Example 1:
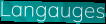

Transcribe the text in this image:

Langauges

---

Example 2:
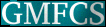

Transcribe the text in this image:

GMFCS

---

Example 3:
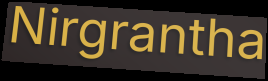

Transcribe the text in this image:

Nirgrantha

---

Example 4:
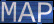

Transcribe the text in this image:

MAP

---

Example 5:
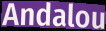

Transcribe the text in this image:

Andalou